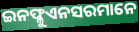
ଇନଫ୍ଳୁଏନସରମାନେ